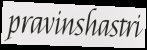
pravinshastri